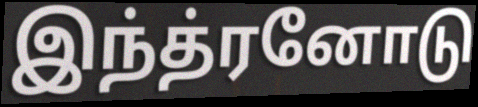
இந்த்ரனோடு